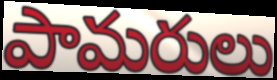
పామరులు